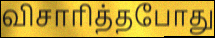
விசாரித்தபோது